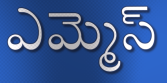
ఎమ్మెస్